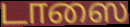
டாஸை